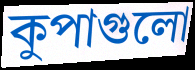
কুপাগুলো